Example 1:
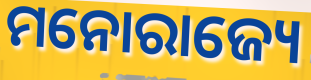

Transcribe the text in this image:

ମନୋରାଜ୍ୟେ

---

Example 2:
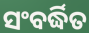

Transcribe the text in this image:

ସଂବର୍ଦ୍ଧିତ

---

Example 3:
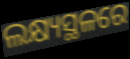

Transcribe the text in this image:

ଲକ୍ଷ୍ୟସ୍ଥଳରେ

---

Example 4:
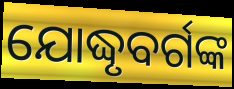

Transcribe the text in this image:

ଯୋଦ୍ଧୃବର୍ଗଙ୍କ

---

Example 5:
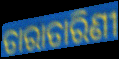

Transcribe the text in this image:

ତାରାତାରିଣୀ